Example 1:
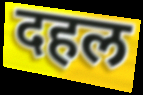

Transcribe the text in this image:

दहल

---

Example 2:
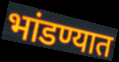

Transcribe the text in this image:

भांडण्यात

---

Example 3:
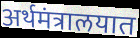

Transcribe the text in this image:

अर्थमंत्रालयात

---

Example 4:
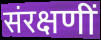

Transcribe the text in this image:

संरक्षणीं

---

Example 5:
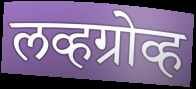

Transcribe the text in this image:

लव्हग्रोव्ह